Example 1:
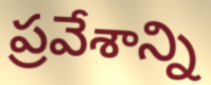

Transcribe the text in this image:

ప్రవేశాన్ని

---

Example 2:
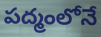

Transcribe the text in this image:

పద్మంలోనే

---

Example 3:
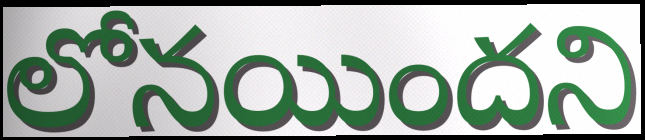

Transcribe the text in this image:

లోనయిందని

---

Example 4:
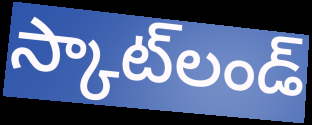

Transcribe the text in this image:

స్కాట్‌లండ్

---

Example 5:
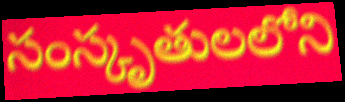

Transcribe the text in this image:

సంస్కృతులలోని